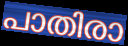
പാതിരാ